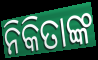
ନିକିତାଙ୍କ